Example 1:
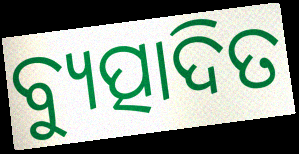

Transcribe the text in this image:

ବ୍ୟୁତ୍ପାଦିତ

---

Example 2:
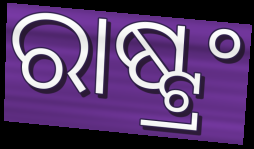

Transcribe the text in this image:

ରାଷ୍ଟ୍ରଂ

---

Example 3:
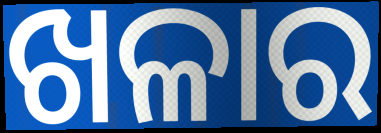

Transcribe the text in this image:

ଖଳାର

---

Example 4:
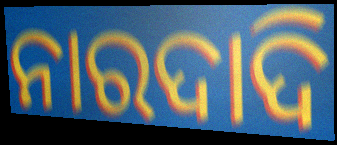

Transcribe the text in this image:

ନାରଦାଦି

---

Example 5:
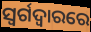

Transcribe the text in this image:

ସ୍ୱର୍ଗଦ୍ୱାରରେ